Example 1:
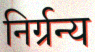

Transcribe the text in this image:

निर्ग्रन्य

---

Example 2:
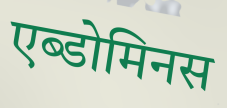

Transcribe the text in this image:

एब्डोमिनस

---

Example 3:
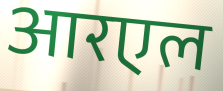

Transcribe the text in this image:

आरएल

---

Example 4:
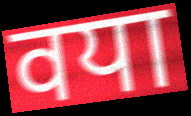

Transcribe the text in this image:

वया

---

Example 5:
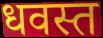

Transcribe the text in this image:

धवस्त